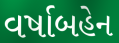
વર્ષાબહેન